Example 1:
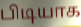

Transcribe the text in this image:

பிடியாக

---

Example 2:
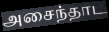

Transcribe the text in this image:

அசைந்தாட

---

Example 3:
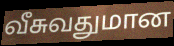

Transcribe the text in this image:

வீசுவதுமான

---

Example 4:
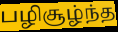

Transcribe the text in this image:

பழிசூழ்ந்த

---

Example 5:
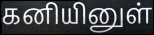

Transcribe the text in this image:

கனியினுள்